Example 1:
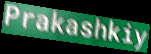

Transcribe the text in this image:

Prakashkiy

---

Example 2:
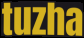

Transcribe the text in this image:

tuzha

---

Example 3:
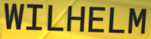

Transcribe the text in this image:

WILHELM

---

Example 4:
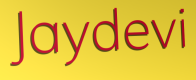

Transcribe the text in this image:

Jaydevi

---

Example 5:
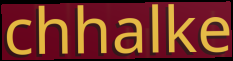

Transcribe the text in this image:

chhalke